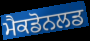
ਮੈਕਡੋਨਲਡ